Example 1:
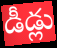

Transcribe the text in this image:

డీడ్లు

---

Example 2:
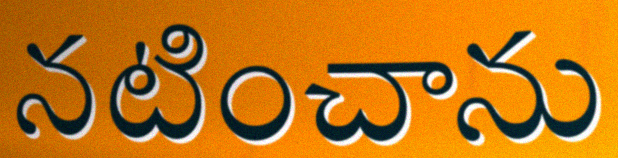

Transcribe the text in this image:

నటించాను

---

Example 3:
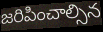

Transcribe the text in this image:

జరిపించాల్సిన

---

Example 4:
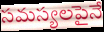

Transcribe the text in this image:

సమస్యలపైనే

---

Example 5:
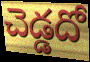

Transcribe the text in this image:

చెడ్డదో